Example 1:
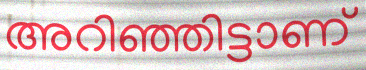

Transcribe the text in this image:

അറിഞ്ഞിട്ടാണ്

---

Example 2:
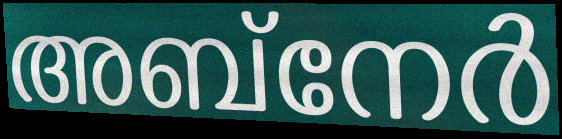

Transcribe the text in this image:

അബ്നേർ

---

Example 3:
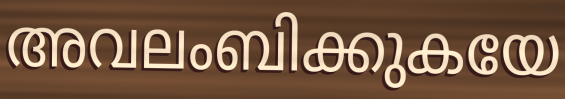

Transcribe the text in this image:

അവലംബിക്കുകയേ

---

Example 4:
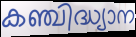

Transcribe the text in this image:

കഞ്ചിദ്ധ്യാന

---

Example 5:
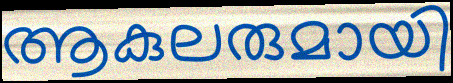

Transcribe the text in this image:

ആകുലരുമായി